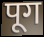
पूग